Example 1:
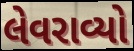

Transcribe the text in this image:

લેવરાવ્યો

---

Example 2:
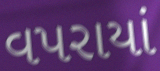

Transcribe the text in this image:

વપરાયાં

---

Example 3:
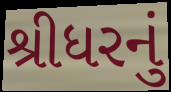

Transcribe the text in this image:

શ્રીધરનું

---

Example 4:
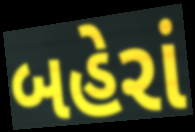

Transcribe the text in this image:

બહેરાં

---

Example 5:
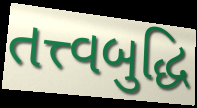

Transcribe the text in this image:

તત્ત્વબુદ્ધિ